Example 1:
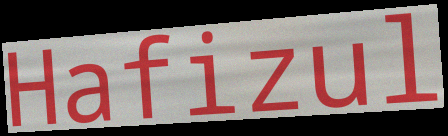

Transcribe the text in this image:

Hafizul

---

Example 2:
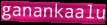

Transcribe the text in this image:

ganankaalu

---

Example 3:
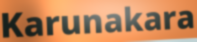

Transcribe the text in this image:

Karunakara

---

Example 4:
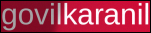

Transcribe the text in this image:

govilkaranil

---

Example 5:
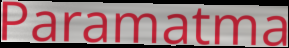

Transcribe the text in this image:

Paramatma